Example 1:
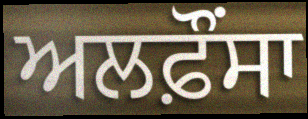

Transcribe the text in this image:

ਅਲਫ਼ੌਂਸਾ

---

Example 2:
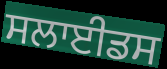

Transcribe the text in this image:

ਸਲਾਈਡਸ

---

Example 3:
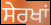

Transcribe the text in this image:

ਸੇਰਖਾਂ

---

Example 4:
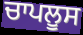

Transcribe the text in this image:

ਚਾਪਲੂਸ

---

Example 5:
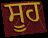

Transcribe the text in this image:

ਸੂਹ